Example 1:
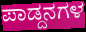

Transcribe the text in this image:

ಪಾಡ್ದನಗಳ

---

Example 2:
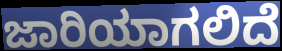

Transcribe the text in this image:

ಜಾರಿಯಾಗಲಿದೆ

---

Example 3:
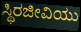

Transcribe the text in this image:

ಸ್ಥಿರಜೀವಿಯು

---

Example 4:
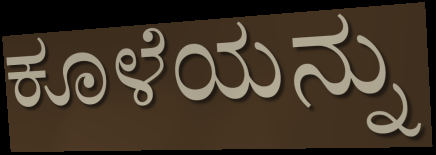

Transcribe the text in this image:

ಕೂಳೆಯನ್ನು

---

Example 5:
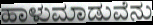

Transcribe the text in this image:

ಹಾಳುಮಾಡುವೆನು